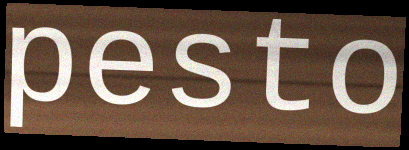
pesto